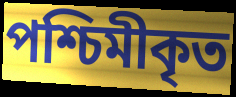
পশ্চিমীকৃত